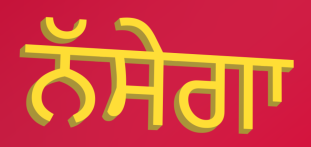
ਨੱਸੇਗਾ